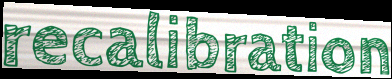
recalibration